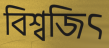
বিশ্বজিৎ